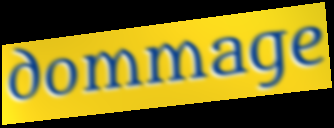
dommage